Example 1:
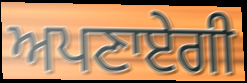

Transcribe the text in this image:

ਅਪਣਾਏਗੀ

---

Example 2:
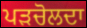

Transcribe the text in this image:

ਪੜਚੋਲਦਾ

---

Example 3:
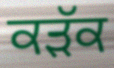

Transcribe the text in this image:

ਕੜੱਕ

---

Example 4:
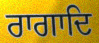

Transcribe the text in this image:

ਰਾਗਾਦਿ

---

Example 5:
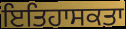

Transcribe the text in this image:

ਇਤਿਹਾਸਕਤਾ